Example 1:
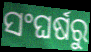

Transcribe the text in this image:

ସଂଘର୍ଷରୁ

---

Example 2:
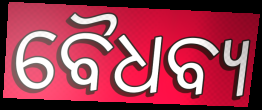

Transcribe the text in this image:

ବୈଧବ୍ୟ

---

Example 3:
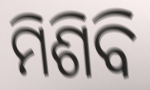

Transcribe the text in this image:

ମିଶିବି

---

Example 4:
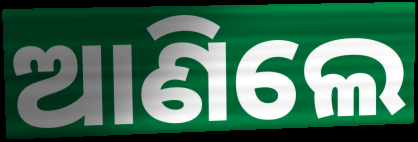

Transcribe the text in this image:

ଆଣିଲେ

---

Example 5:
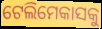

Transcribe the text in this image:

ଟେଲିମେକାସକୁ